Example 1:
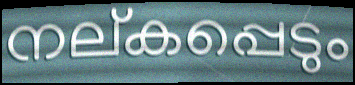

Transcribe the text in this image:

നല്കപ്പെടും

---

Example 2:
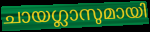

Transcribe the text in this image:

ചായഗ്ലാസുമായി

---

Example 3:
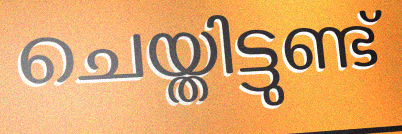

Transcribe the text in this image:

ചെയ്തിട്ടുണ്ട്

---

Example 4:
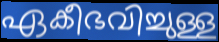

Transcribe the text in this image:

ഏകീഭവിച്ചുള്ള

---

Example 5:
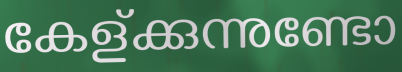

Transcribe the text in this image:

കേള്ക്കുന്നുണ്ടോ